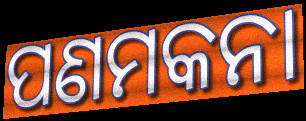
ପଣମକନା